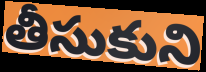
తీసుకుని